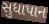
સુધાપાન